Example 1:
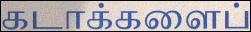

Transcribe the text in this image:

கடாக்களைப்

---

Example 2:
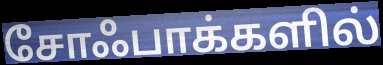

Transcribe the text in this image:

சோஃபாக்களில்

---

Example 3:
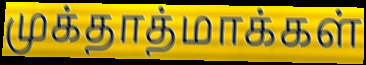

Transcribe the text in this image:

முக்தாத்மாக்கள்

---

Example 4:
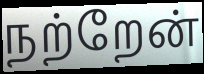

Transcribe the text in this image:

நற்றேன்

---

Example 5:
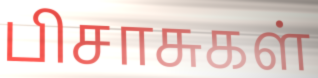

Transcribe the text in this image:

பிசாசுகள்